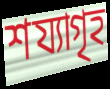
শয্যাগৃহ